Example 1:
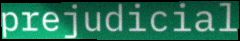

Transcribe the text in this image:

prejudicial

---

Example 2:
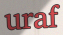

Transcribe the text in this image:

uraf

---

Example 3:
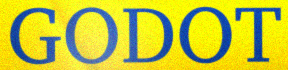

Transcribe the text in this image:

GODOT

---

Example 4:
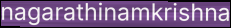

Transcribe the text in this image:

nagarathinamkrishna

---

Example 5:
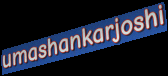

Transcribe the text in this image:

umashankarjoshi